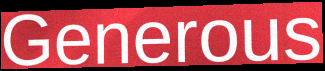
Generous